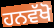
ਹਨਵੱਖੋ